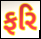
ફરિ